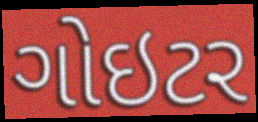
ગોઇટર